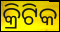
କ୍ରିଟିକ